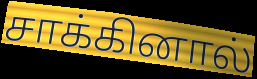
சாக்கினால்